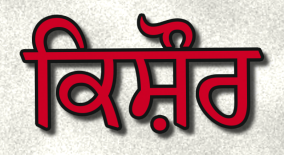
ਕਿਸ਼ੌਰ